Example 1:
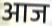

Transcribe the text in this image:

आज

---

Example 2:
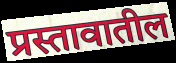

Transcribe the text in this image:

प्रस्तावातील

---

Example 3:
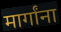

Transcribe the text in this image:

मार्गांना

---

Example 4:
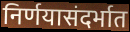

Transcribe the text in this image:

निर्णयासंदर्भात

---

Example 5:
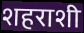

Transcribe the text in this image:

शहराशी